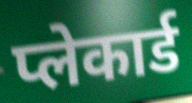
प्लेकार्ड